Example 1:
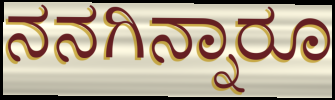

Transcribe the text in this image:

ನನಗಿನ್ನಾರೂ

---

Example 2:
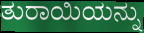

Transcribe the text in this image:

ತುರಾಯಿಯನ್ನು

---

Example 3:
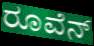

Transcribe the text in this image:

ರೂವೆನ್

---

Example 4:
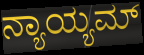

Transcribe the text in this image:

ನ್ಯಾಯ್ಯಮ್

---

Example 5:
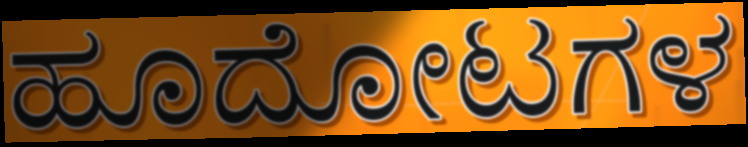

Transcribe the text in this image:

ಹೂದೋಟಗಳ